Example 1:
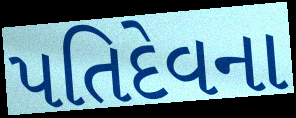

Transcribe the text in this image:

પતિદેવના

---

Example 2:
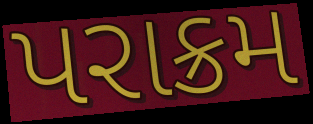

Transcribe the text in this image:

પરાક્રમ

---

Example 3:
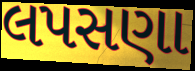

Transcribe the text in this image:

લપસણા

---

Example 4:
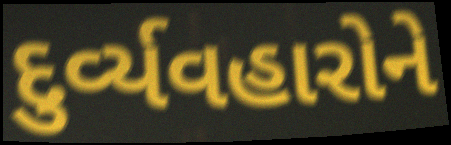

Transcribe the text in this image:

દુર્વ્યવહારોને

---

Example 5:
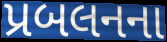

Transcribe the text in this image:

પ્રબલનના